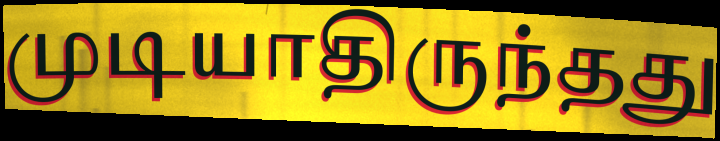
முடியாதிருந்தது